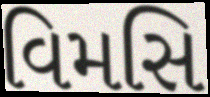
વિમસિ